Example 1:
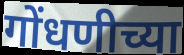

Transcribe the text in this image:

गोंधणीच्या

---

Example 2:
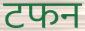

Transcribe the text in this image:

टफन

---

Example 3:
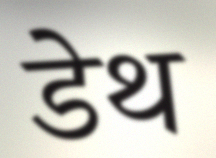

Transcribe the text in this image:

डेथ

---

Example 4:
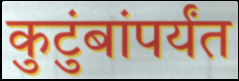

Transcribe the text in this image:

कुटुंबांपर्यंत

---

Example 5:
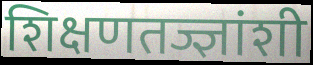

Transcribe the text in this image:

शिक्षणतज्ज्ञांशी